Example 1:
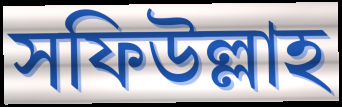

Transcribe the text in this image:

সফিউল্লাহ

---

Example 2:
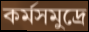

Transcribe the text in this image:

কর্মসমুদ্রে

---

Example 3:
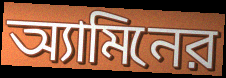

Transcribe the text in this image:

অ্যামিনের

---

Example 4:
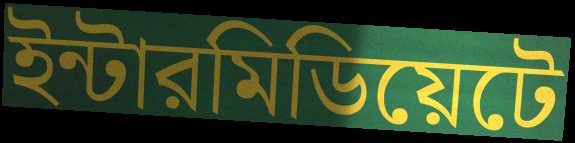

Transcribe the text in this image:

ইন্টারমিডিয়েটে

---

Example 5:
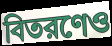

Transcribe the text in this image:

বিতরণেও